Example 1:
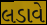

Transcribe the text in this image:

લડાવે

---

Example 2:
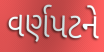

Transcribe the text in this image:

વર્ણપટને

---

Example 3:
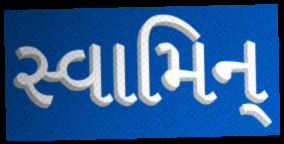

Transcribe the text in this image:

સ્વામિન્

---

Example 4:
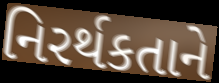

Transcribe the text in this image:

નિરર્થકતાને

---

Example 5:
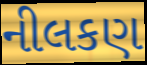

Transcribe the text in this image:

નીલકણ